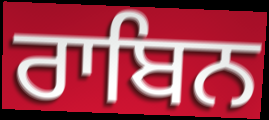
ਰਾਬਿਨ